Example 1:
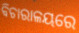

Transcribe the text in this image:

ବିଚାରାଳୟରେ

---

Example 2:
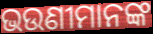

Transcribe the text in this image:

ଭଉଣୀମାନଙ୍କ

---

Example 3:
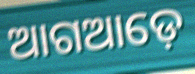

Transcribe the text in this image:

ଆଗଆଡ଼େ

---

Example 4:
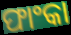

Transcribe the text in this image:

ଫାଂକା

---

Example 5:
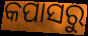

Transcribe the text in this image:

କପାସରୁ